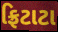
ફ્રિટાટા